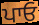
ਪਾਓ